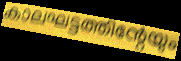
കാലഘട്ടത്തിന്റേയും